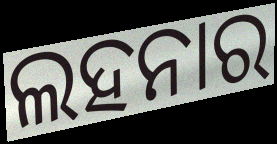
ଲହନାର